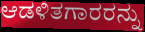
ಆಡಳಿತಗಾರರನ್ನು